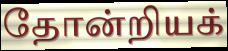
தோன்றியக்